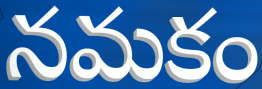
నమకం